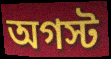
অগস্ট